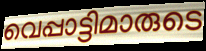
വെപ്പാട്ടിമാരുടെ